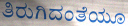
ತಿರುಗಿದಂತೆಯೂ